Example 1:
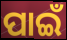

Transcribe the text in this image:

ପାଇଁ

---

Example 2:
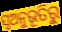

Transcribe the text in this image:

ସ୍ୱଅନୁଭୂତିରୁ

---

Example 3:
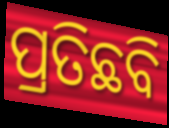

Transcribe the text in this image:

ପ୍ରତିଛବି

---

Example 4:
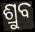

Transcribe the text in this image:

ଶ୍ରୁବ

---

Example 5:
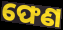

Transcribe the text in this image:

ଫେଣ